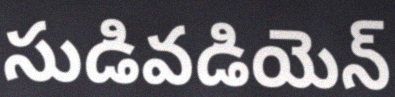
సుడివడియెన్